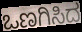
ಒಣಗಿಸಿದ